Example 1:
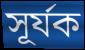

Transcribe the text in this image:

সূৰ্যক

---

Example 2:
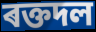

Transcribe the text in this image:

ৰক্তদল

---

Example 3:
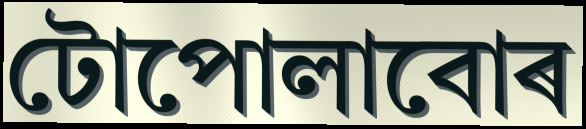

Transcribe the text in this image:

টোপোলাবোৰ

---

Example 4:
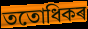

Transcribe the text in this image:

ততোধিকৰ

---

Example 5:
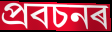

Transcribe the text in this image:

প্ৰবচনৰ